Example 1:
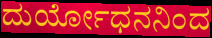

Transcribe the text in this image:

ದುರ್ಯೋಧನನಿಂದ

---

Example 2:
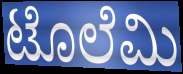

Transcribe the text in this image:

ಟೊಲೆಮಿ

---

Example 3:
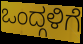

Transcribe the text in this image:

ಒಂದ್ಗಳಿಗೆ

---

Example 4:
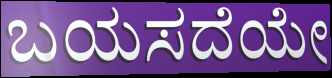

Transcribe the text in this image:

ಬಯಸದೆಯೇ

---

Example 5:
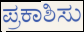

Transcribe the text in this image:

ಪ್ರಕಾಶಿಸು